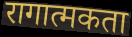
रागात्मकता